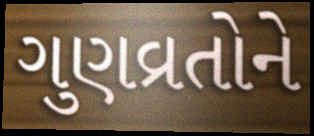
ગુણવ્રતોને